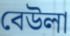
বেউলা